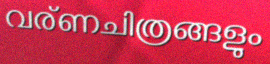
വര്ണചിത്രങ്ങളും